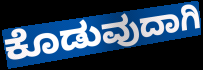
ಕೊಡುವುದಾಗಿ